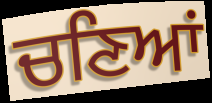
ਚਣਿਆਂ